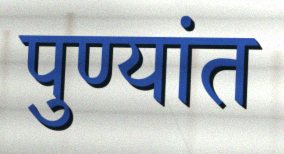
पुण्यांत